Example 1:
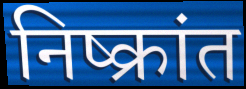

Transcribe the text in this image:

निष्क्रांत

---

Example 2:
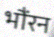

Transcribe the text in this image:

भौंरन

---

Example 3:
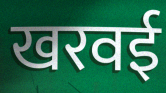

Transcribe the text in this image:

खरवई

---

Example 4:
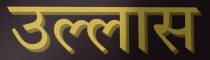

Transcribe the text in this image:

उल्‍लास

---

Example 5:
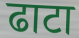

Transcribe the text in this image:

ढाटा